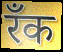
रँक